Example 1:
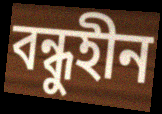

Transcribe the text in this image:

বন্ধুহীন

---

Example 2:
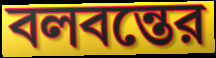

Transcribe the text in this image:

বলবন্তের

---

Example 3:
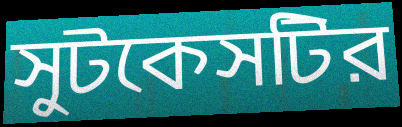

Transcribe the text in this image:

সুটকেসটির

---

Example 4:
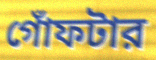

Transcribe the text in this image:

গোঁফটার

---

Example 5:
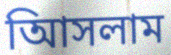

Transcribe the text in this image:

আিসলাম